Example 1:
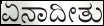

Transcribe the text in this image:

ಏನಾದೀತು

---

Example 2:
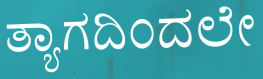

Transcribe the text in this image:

ತ್ಯಾಗದಿಂದಲೇ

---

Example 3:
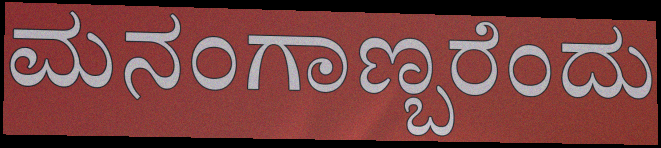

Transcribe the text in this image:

ಮನಂಗಾಣ್ಬರೆಂದು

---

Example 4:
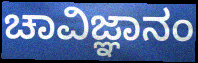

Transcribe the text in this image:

ಚಾವಿಜ್ಞಾನಂ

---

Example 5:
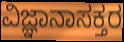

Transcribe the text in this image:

ವಿಜ್ಞಾನಾಸಕ್ತರ